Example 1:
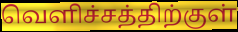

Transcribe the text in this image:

வெளிச்சத்திற்குள்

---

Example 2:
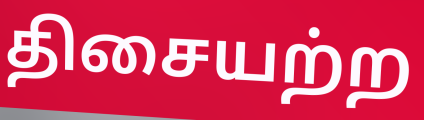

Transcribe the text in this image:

திசையற்ற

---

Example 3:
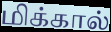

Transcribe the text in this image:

மிக்கால்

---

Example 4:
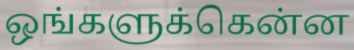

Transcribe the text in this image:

ஒங்களுக்கென்ன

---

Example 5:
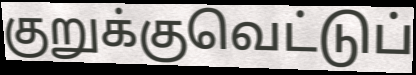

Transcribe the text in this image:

குறுக்குவெட்டுப்